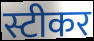
स्टीकर